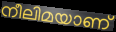
നീലിമയാണ്